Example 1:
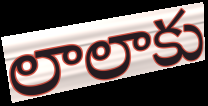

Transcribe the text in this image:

లాలాకు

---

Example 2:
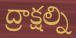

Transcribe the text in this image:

ద్రాక్షల్ని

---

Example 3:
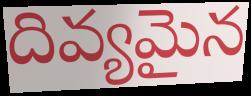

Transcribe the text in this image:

దివ్యమైన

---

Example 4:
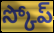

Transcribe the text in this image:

స్కోప్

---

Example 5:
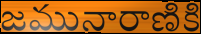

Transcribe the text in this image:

జమునారాణికి